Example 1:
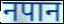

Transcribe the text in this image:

नपान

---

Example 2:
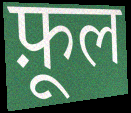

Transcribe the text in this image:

फ़ूल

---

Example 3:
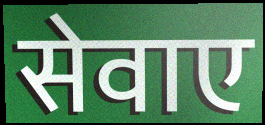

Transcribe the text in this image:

सेवाए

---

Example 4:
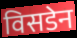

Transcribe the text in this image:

विसडेन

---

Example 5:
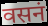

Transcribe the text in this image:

वसनं